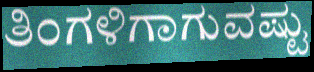
ತಿಂಗಳಿಗಾಗುವಷ್ಟು